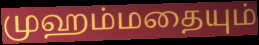
முஹம்மதையும்